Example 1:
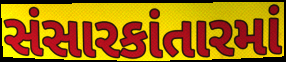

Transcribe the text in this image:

સંસારકાંતારમાં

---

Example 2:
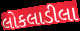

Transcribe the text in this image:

લોકલાડીલા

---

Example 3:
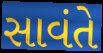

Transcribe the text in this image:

સાવંતે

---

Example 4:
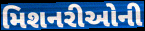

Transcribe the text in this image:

મિશનરીઓની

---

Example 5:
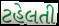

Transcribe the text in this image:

ટહેલતી